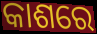
କାଶରେ